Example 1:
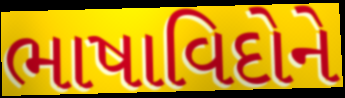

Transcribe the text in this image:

ભાષાવિદોને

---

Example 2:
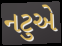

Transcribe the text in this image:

નટુએ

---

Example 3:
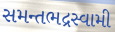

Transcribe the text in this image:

સમન્તભદ્રસ્વામી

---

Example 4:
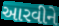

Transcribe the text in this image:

આરવીને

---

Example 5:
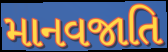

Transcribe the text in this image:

માનવજાતિ